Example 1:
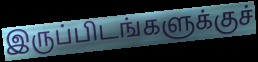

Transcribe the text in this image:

இருப்பிடங்களுக்குச்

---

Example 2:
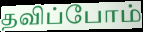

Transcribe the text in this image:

தவிப்போம்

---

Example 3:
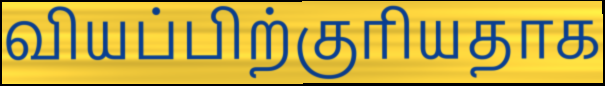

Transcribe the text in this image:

வியப்பிற்குரியதாக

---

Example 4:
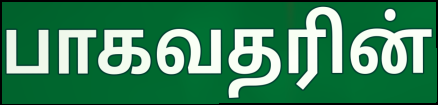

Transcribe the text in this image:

பாகவதரின்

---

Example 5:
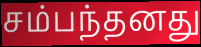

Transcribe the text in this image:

சம்பந்தனது